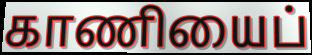
காணியைப்